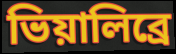
ভিয়ালিব্রে